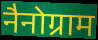
नैनोग्राम